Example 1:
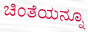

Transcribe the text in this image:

ಚಿಂತೆಯನ್ನೂ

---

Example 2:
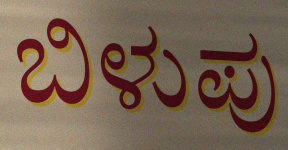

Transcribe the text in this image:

ಬಿಳುಪು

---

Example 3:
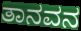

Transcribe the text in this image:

ತಾನವನ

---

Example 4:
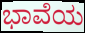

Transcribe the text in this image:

ಭಾವೆಯ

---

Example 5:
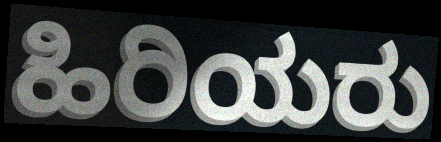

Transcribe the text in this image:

ಹಿರಿಯರು